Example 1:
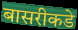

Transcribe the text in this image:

बासरीकडे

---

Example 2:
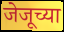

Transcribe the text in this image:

जेजूच्या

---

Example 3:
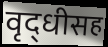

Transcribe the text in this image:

वृद्धीसह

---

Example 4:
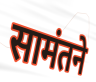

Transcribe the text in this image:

सामंतने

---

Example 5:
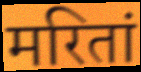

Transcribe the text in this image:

मरितां